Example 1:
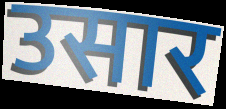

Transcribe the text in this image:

उसार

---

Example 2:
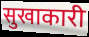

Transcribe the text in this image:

सुखाकारी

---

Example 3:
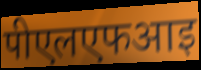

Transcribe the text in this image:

पीएलएफआइ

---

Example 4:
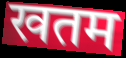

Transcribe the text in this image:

खतम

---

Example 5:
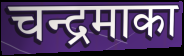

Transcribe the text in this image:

चन्द्रमाका